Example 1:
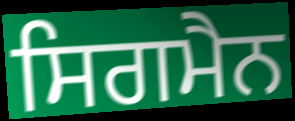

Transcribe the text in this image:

ਸਿਗਮੈਨ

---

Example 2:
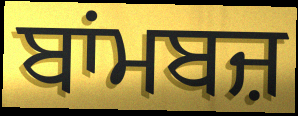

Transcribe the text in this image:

ਬਾਂਮਬਜ਼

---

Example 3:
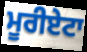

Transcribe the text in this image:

ਮੂਰੀਏਟਾ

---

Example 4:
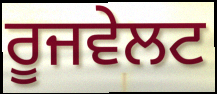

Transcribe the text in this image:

ਰੂਜਵੇਲਟ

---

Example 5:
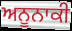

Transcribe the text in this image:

ਅਨੂਨਾਕੀ